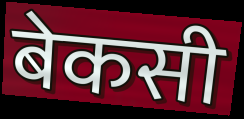
बेकसी